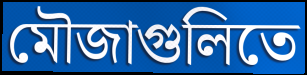
মৌজাগুলিতে